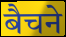
बैचने